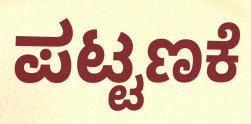
ಪಟ್ಟಣಕೆ